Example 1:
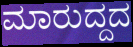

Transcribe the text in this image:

ಮಾರುದ್ದದ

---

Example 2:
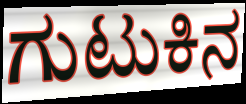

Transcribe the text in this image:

ಗುಟುಕಿನ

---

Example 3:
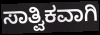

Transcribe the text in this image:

ಸಾತ್ವಿಕವಾಗಿ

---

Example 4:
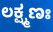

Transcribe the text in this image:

ಲಕ್ಷ್ಮಣಃ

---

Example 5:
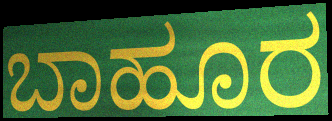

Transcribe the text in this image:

ಬಾಹೂರ